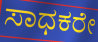
ಸಾಧಕರೇ